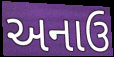
અનાઉ